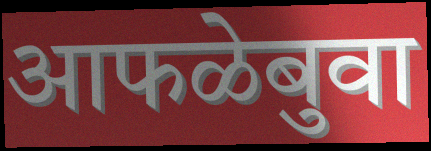
आफळेबुवा